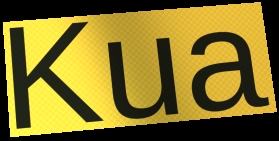
Kua